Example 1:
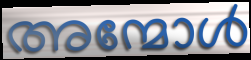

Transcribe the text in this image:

അന്മോൾ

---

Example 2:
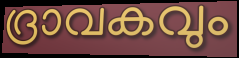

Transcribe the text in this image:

ദ്രാവകവും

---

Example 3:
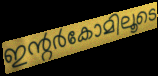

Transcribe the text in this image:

ഇന്റർകോമിലൂടെ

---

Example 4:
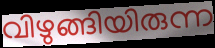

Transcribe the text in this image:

വിഴുങ്ങിയിരുന്ന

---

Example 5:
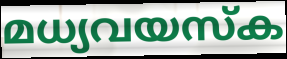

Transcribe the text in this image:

മധ്യവയസ്ക